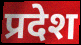
प्रदेश